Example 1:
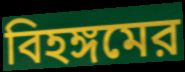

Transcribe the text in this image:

বিহঙ্গমের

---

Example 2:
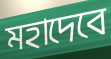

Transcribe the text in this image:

মহাদেবে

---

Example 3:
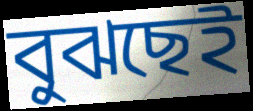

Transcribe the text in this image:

বুঝছেই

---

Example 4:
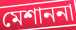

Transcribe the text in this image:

মেশাননা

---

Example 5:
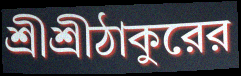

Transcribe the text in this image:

শ্রীশ্রীঠাকুরের